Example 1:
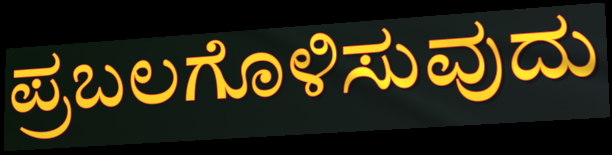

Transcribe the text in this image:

ಪ್ರಬಲಗೊಳಿಸುವುದು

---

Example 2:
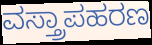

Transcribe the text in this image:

ವಸ್ತ್ರಾಪಹರಣ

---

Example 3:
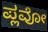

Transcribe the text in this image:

ಪ್ಲವೋ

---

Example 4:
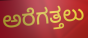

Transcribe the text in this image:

ಅರೆಗತ್ತಲು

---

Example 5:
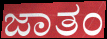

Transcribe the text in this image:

ಜಾತಂ